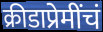
क्रीडाप्रेमींचं